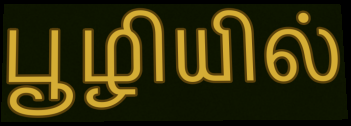
பூழியில்